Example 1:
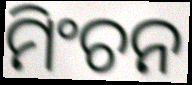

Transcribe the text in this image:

ମିଂଚନ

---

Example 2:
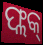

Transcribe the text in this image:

ଫ୍ଲକ୍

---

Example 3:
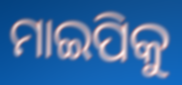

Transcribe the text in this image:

ମାଇପିକୁ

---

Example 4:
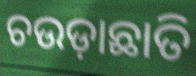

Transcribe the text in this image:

ଚଉଡ଼ାଛାତି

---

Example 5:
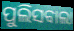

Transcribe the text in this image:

ପୁଲିସବାଲା